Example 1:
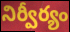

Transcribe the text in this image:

నిర్వీర్యం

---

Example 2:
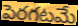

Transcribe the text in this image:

పెరగటమే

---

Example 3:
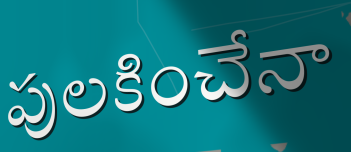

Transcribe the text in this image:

పులకించేనా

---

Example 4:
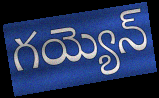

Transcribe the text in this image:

గయ్యెన్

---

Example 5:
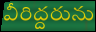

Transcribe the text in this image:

వీరిద్దరును